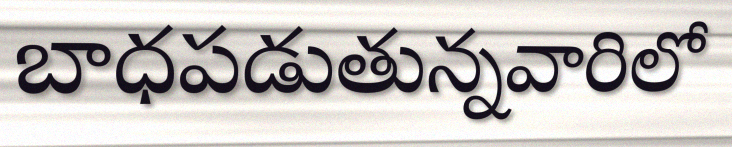
బాధపడుతున్నవారిలో